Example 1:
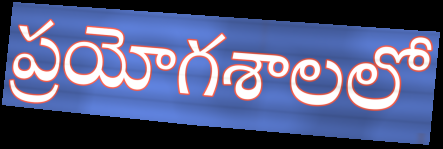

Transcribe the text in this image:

ప్రయోగశాలలో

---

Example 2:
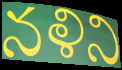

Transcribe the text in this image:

నళిని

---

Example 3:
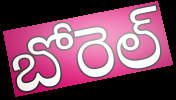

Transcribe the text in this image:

బోరెల్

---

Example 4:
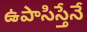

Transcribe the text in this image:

ఉపాసిస్తేనే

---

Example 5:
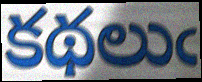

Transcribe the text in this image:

కథలుఁ